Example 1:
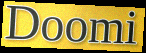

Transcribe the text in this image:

Doomi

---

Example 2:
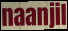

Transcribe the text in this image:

naanjil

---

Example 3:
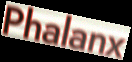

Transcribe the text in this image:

Phalanx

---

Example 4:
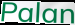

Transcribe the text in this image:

Palan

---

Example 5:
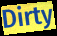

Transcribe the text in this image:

Dirty